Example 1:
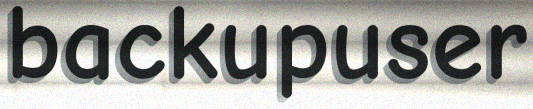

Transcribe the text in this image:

backupuser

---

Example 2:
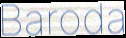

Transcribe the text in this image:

Baroda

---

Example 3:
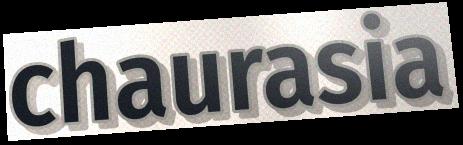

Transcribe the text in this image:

chaurasia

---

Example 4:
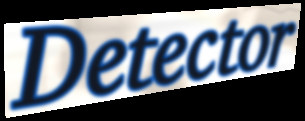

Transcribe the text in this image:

Detector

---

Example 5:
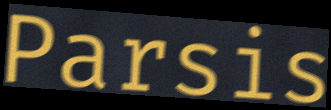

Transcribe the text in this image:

Parsis